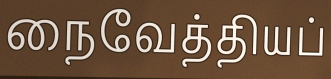
நைவேத்தியப்